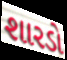
શારડો